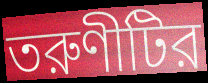
তরুণীটির